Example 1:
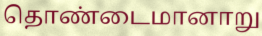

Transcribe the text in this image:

தொண்டைமானாறு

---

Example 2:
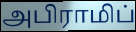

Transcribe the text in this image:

அபிராமிப்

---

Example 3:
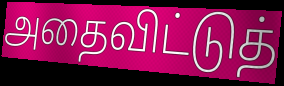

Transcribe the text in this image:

அதைவிட்டுத்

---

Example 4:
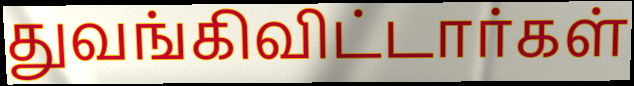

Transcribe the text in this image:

துவங்கிவிட்டார்கள்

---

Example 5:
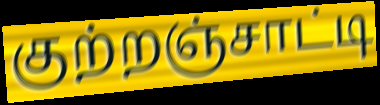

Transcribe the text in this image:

குற்றஞ்சாட்டி